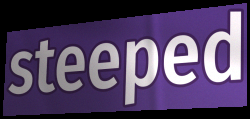
steeped